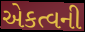
એકત્વની